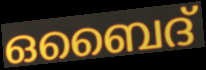
ഒബൈദ്